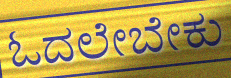
ಓದಲೇಬೇಕು